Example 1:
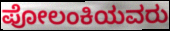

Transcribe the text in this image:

ಪೋಲಂಕಿಯವರು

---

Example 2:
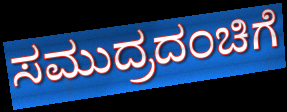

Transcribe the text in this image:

ಸಮುದ್ರದಂಚಿಗೆ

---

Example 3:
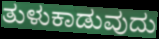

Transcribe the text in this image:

ತುಳುಕಾಡುವುದು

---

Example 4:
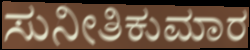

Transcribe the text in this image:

ಸುನೀತಿಕುಮಾರ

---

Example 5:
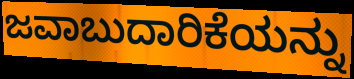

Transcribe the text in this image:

ಜವಾಬುದಾರಿಕೆಯನ್ನು